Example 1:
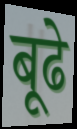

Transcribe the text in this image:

बूढे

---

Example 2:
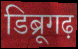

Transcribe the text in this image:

डिब्रूगढ़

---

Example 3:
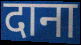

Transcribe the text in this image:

दाना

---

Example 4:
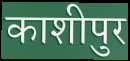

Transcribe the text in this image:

काशीपुर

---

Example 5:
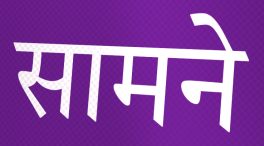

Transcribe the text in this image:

सामने